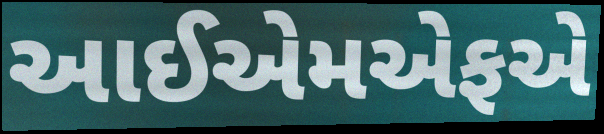
આઈએમએફએ